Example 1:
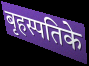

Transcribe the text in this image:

बृहस्पतिके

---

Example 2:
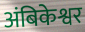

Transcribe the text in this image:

अंबिकेश्वर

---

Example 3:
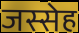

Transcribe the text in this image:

जस्सेह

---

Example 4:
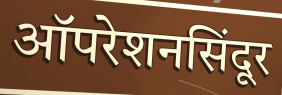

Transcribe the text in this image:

ऑपरेशनसिंदूर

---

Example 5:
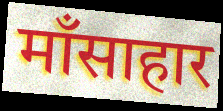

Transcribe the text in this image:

माँसाहार